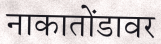
नाकातोंडावर